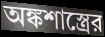
অঙ্কশাস্ত্রের